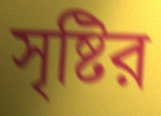
সৃষ্টির